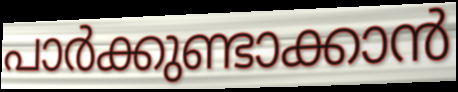
പാർക്കുണ്ടാക്കാൻ